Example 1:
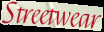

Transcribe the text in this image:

Streetwear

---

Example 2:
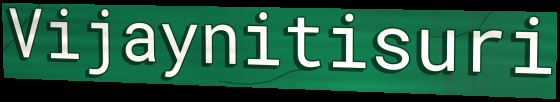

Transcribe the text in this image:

Vijaynitisuri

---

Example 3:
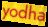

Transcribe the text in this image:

yodha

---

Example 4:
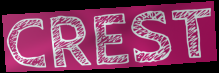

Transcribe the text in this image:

CREST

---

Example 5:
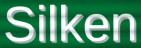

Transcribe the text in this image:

Silken